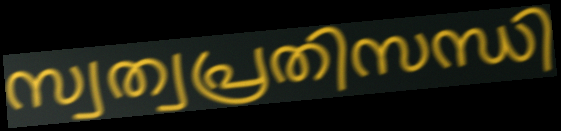
സ്വത്വപ്രതിസന്ധി